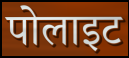
पोलाइट